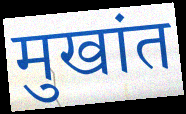
मुखांत